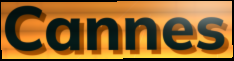
Cannes